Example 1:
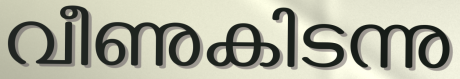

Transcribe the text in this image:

വീണുകിടന്നു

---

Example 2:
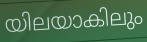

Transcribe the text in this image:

യിലയാകിലും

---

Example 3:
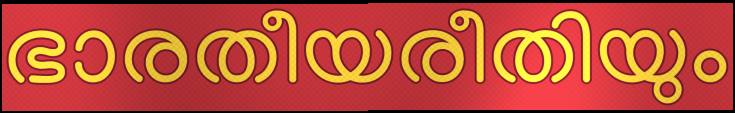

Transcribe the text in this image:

ഭാരതീയരീതിയും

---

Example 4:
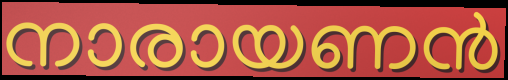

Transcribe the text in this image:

നാരായണൻ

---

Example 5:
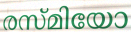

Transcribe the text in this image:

രസ്മിയോ